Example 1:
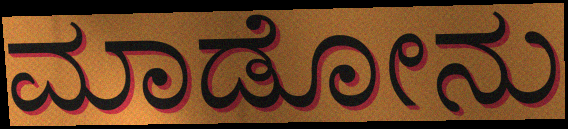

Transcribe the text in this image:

ಮಾಡೋನು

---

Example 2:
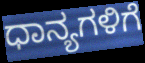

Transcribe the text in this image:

ಧಾನ್ಯಗಳಿಗೆ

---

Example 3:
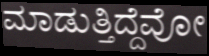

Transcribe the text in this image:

ಮಾಡುತ್ತಿದ್ದೆವೋ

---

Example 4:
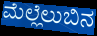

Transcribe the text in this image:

ಮೆಲ್ಲೆಲುಬಿನ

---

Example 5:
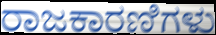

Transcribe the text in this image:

ರಾಜಕಾರಣಿಗಳು